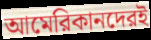
আমেরিকানদেরই